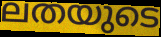
ലതയുടെ